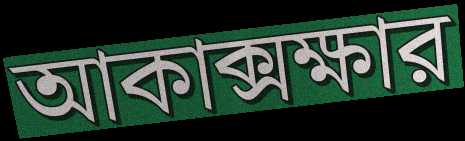
আকাক্সক্ষার